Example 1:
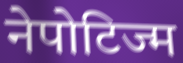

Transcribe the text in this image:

नेपोटिज्म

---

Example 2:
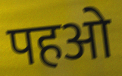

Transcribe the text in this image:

पहओ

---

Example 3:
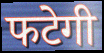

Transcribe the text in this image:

फटेगी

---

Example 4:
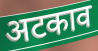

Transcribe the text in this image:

अटकाव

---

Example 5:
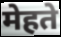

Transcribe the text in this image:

मेहते